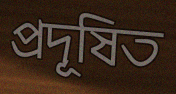
প্ৰদূষিত